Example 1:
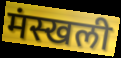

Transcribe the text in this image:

मंस्खली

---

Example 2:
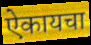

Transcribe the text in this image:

ऐकायचा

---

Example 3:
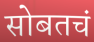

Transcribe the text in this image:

सोबतचं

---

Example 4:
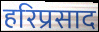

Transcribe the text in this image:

हरिप्रसाद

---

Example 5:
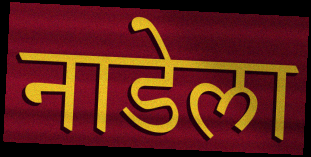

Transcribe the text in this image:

नाडेला